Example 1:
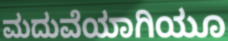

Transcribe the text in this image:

ಮದುವೆಯಾಗಿಯೂ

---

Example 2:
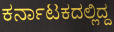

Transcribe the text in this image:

ಕರ್ನಾಟಕದಲ್ಲಿದ್ದ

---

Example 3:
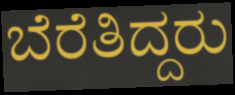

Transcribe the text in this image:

ಬೆರೆತಿದ್ದರು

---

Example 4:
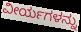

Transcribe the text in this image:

ವೀರ್ಯಗಳನ್ನು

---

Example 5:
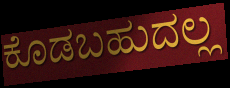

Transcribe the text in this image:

ಕೊಡಬಹುದಲ್ಲ